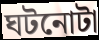
ঘটনোটা